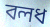
বলধ